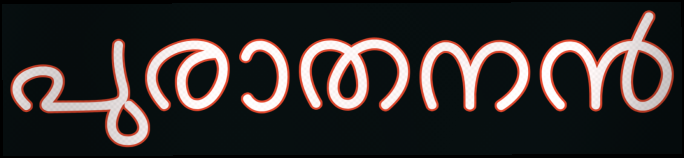
പുരാതനൻ